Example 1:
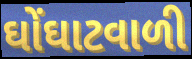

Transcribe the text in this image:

ઘોંઘાટવાળી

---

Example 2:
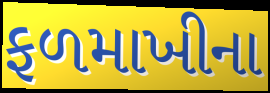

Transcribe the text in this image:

ફળમાખીના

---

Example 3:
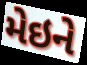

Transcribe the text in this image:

મેઇને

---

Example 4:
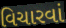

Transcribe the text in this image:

વિચારવાં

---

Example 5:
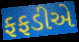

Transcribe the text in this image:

ફફડીએ